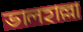
ভালহাল্লা